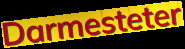
Darmesteter